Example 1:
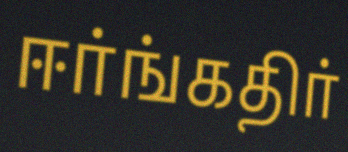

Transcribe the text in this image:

ஈர்ங்கதிர்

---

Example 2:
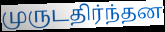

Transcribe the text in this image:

முருடதிர்ந்தன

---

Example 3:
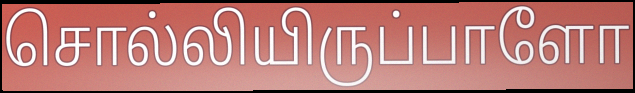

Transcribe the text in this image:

சொல்லியிருப்பாளோ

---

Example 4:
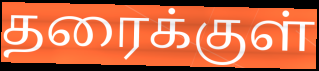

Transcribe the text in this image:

தரைக்குள்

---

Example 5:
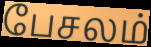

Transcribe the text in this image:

பேசலம்